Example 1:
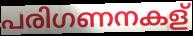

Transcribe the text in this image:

പരിഗണനകള്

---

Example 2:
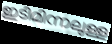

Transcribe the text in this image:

ഇടിമിന്നലുള്ള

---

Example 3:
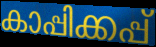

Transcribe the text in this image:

കാപ്പിക്കപ്പ്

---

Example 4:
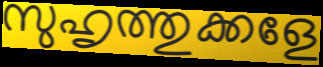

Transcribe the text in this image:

സുഹൃത്തുക്കളേ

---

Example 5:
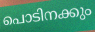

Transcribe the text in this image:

പൊടിനക്കും